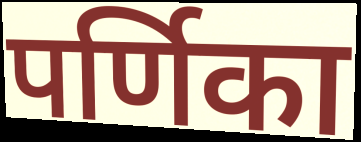
पर्णिका